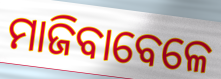
ମାଜିବାବେଳେ